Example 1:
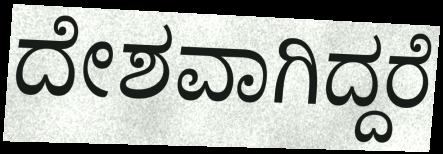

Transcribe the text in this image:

ದೇಶವಾಗಿದ್ದರೆ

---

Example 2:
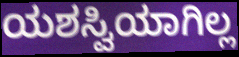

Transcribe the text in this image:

ಯಶಸ್ವಿಯಾಗಿಲ್ಲ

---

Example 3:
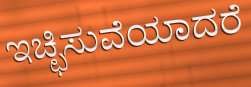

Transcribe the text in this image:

ಇಚ್ಛಿಸುವೆಯಾದರೆ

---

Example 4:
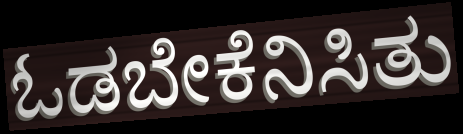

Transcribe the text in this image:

ಓಡಬೇಕೆನಿಸಿತು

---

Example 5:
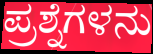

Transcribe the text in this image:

ಪ್ರಶ್ನೆಗಳನು